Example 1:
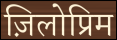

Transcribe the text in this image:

ज़िलोप्रिम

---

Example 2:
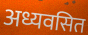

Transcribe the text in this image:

अध्यवसित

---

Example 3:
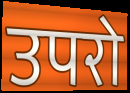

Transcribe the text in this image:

उपरो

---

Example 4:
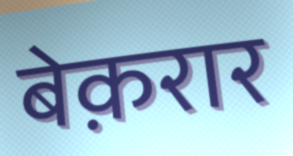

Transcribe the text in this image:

बेक़रार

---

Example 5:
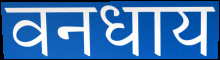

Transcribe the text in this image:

वनधाय